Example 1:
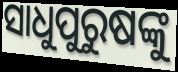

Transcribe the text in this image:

ସାଧୁପୁରୁଷଙ୍କୁ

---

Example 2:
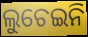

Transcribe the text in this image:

ଲୁଚେଇନି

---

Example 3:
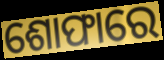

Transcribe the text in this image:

ଶୋଫାରେ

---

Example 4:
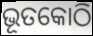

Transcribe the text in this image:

ଭୂତକୋଠି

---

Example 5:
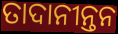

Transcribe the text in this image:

ତାଦାନୀନ୍ତନ